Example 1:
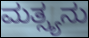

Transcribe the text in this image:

ಮತ್ಸ್ಯನು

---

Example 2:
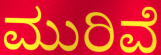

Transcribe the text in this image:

ಮುರಿವೆ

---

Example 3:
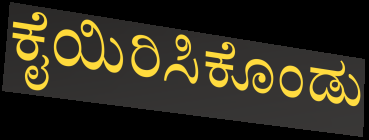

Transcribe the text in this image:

ಕೈಯಿರಿಸಿಕೊಂಡು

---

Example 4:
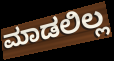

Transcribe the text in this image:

ಮಾಡಲಿಲ್ಲ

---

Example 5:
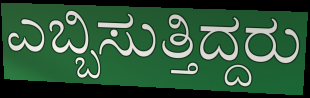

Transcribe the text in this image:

ಎಬ್ಬಿಸುತ್ತಿದ್ದರು